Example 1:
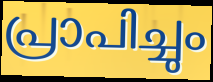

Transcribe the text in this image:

പ്രാപിച്ചും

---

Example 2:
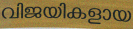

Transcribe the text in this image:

വിജയികളായ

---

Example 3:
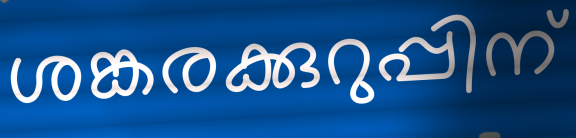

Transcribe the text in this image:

ശങ്കരക്കുറുപ്പിന്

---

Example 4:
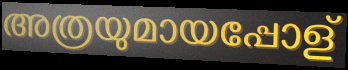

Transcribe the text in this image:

അത്രയുമായപ്പോള്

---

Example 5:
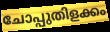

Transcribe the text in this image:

ചോപ്പുതിളക്കം